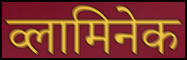
व्लामिनेक